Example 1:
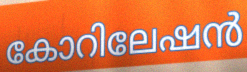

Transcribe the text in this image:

കോറിലേഷൻ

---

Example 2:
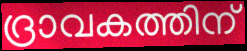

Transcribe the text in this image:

ദ്രാവകത്തിന്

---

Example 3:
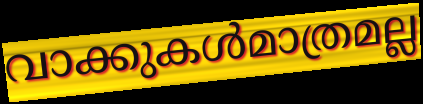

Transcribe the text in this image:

വാക്കുകൾമാത്രമല്ല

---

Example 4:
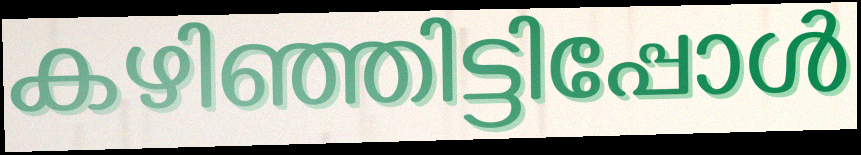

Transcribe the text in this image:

കഴിഞ്ഞിട്ടിപ്പോൾ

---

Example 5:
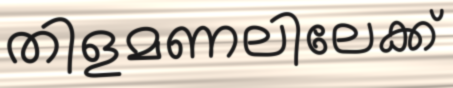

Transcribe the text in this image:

തിളമണലിലേക്ക്